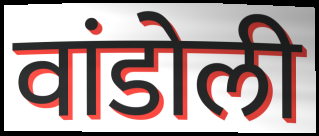
वांडोली